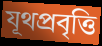
যূথপ্রবৃত্তি